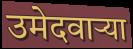
उमेदवार्‍या